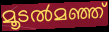
മൂടൽമഞ്ഞ്